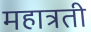
महात्रती